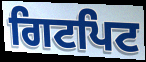
ਗਿਟਪਿਟ